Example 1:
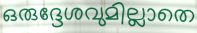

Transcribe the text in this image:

ഒരുദ്ദേശവുമില്ലാതെ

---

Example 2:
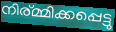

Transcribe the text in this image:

നിര്മ്മിക്കപ്പെട്ടു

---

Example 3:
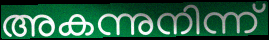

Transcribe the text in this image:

അകന്നുനിന്ന്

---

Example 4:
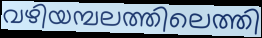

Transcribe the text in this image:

വഴിയമ്പലത്തിലെത്തി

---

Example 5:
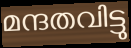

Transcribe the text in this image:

മന്ദതവിട്ടു